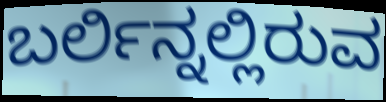
ಬರ್ಲಿನ್ನಲ್ಲಿರುವ